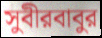
সুবীরবাবুর